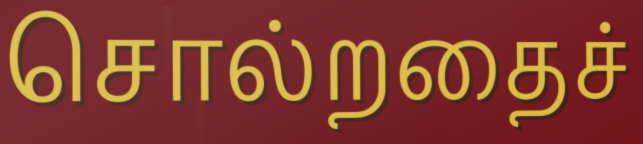
சொல்றதைச்